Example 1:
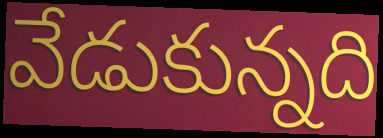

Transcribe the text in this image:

వేడుకున్నది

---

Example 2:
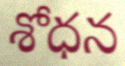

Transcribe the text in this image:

శోధన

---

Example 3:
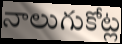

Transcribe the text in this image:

నాలుగుకోట్ల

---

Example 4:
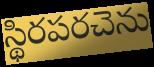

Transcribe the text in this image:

స్థిరపరచెను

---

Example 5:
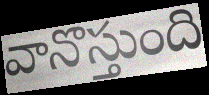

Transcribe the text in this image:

వానొస్తుంది